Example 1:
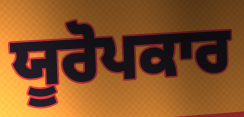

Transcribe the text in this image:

ਯੂਰੋਪਕਾਰ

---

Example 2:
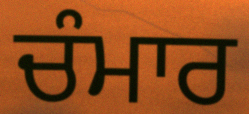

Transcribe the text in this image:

ਚੰਮਾਰ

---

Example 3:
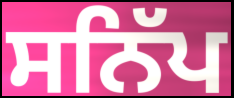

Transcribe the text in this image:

ਸਨਿੱਪ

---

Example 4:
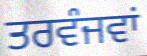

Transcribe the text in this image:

ਤਰਵੰਜਵਾਂ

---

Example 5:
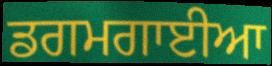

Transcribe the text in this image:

ਡਗਮਗਾਈਆ